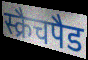
स्क्रैचपैड